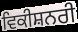
ਵਿਕੀਸ਼ਨਰੀ